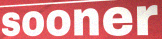
sooner